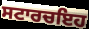
ਸਟਾਰਚਇਹ